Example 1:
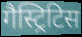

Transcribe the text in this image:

गैस्ट्रिटिस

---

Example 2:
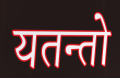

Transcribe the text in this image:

यतन्तो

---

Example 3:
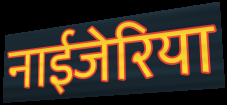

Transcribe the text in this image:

नाईजेरिया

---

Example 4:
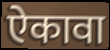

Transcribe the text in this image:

ऐकावा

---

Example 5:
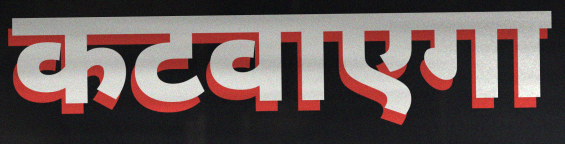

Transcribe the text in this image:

कटवाएगा